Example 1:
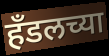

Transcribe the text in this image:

हँडलच्या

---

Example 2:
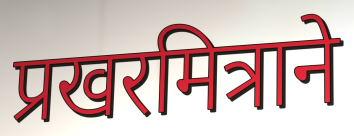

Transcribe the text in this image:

प्रखरमित्राने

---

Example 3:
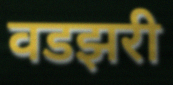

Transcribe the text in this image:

वडझरी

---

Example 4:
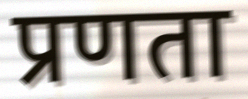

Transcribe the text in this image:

प्रणता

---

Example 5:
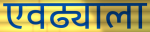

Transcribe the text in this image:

एवढ्याला